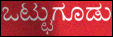
ಒಟ್ಟುಗೂಡು